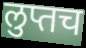
लुप्तच